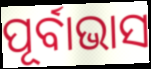
ପୂର୍ବାଭାସ